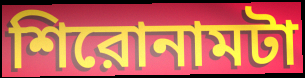
শিরোনামটা